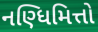
નણ્ધિમિત્તો